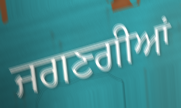
ਜਗਣਗੀਆਂ